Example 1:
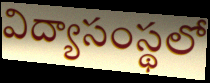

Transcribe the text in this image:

విద్యాసంస్థలో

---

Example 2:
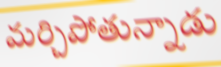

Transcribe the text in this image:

మర్చిపోతున్నాడు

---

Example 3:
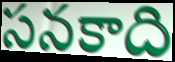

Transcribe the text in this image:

సనకాది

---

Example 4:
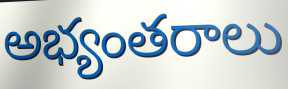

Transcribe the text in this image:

అభ్యంతరాలు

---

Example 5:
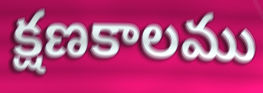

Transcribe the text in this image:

క్షణకాలము